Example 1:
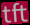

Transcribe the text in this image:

tft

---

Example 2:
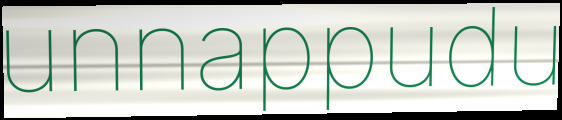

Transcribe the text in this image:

unnappudu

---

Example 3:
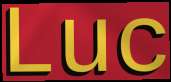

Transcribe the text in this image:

Luc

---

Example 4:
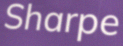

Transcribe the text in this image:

Sharpe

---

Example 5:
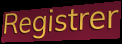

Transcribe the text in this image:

Registrer